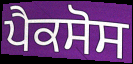
ਪੈਕਸੋਸ